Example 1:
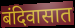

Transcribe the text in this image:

बंदिवासात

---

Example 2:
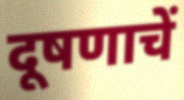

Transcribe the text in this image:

दूषणाचें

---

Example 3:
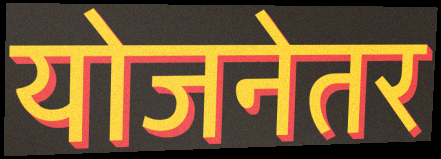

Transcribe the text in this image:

योजनेतर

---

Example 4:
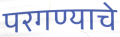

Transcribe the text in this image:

परगण्याचे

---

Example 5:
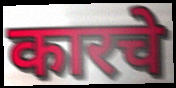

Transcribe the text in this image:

कारचे